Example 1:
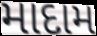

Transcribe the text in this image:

માદામ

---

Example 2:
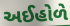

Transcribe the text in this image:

અઈહોળે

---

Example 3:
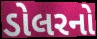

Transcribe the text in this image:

ડોલરનો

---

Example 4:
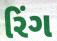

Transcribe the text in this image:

રિંગ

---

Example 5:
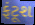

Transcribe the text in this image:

ફંટૂશ